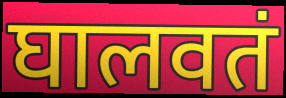
घालवतं